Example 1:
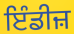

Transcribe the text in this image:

ਇੰਡੀਜ਼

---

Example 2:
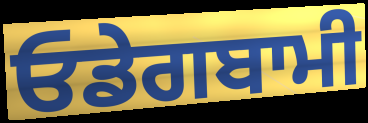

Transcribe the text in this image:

ਓਡੇਗਬਾਮੀ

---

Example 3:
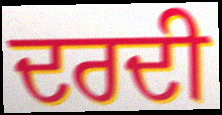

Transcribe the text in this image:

ਦਰਦੀ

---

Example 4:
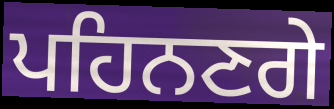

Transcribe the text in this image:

ਪਹਿਨਣਗੇ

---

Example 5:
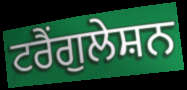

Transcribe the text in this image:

ਟਰੈਂਗੁਲੇਸ਼ਨ